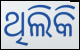
ଥିଲିକି